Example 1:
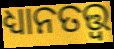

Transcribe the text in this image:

ଧ୍ୟାନତତ୍ତ୍ୱ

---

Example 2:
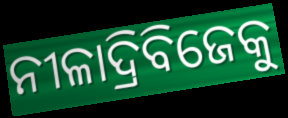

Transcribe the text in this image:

ନୀଳାଦ୍ରିବିଜେକୁ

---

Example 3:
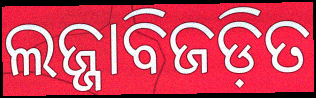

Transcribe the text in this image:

ଲଜ୍ଜାବିଜଡ଼ିତ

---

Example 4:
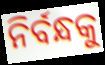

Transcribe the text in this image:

ନିର୍ବନ୍ଧକୁ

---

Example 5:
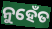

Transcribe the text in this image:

ନୁହେଁତ